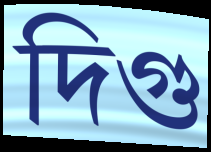
দিগু